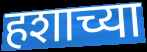
हशाच्या